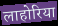
लाहोरिया